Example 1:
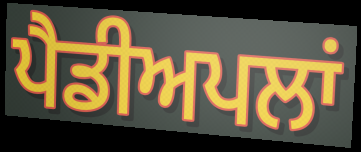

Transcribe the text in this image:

ਪੈਡੀਅਪਲਾਂ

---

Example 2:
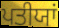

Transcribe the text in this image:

ਪਤੀਯਾਂ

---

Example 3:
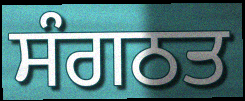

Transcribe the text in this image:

ਸੰਗਠਤ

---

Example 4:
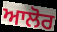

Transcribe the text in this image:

ਆਲੋਰ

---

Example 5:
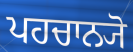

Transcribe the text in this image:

ਪਹਚਾਨ੍ਯੋ